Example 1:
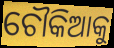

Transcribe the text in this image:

ଚୌକିଆକୁ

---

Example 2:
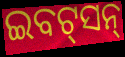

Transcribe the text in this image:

ଇବଟ୍‌ସନ୍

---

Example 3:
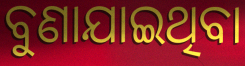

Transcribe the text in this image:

ବୁଣାଯାଇଥିବା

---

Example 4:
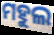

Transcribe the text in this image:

ମହୁଲ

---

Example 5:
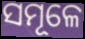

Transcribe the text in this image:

ସମୂଳେ